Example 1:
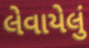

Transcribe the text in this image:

લેવાયેલું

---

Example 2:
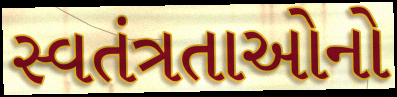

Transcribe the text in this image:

સ્વતંત્રતાઓનો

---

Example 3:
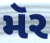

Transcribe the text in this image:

મૅર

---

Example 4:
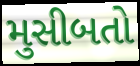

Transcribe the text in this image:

મુસીબતો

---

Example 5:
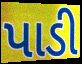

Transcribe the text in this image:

પાડી